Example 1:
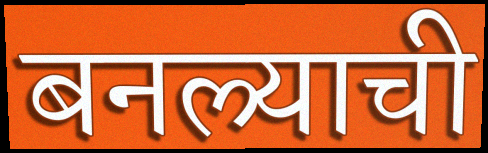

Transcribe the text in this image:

बनल्याची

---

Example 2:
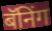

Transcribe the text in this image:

बॅनिंग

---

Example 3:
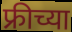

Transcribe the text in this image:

फ्रीच्या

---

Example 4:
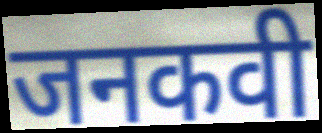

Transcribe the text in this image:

जनकवी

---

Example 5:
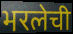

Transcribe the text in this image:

भरलेची